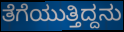
ತೆಗೆಯುತ್ತಿದ್ದನು